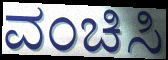
ವಂಚಿಸಿ